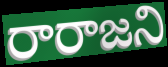
రారాజని